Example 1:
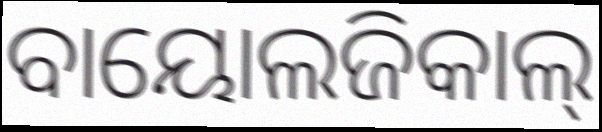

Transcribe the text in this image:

ବାୟୋଲଜିକାଲ୍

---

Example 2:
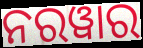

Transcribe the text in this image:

ନରୱାର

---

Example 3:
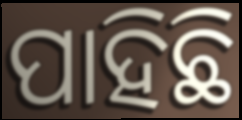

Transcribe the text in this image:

ପାହିଛି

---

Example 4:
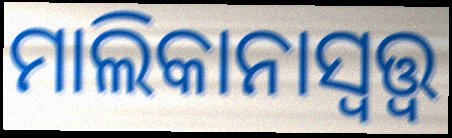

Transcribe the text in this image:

ମାଲିକାନାସ୍ୱତ୍ତ୍ୱ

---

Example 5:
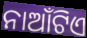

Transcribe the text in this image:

ନାଆଁଟିଏ